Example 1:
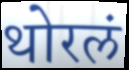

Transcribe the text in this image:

थोरलं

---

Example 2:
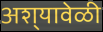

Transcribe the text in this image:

अश्यावेळी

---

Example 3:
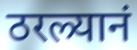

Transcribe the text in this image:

ठरल्यानं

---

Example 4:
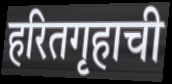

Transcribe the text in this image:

हरितगृहाची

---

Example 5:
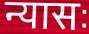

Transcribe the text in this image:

न्यासः